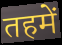
तहमें